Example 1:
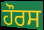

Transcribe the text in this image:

ਹੌਰਸ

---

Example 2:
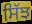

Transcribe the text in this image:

ਸਿੱਝ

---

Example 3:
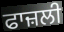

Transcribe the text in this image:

ਫਾਜ਼ਲੀ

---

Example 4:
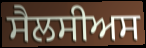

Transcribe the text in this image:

ਸੈਲਸੀਅਸ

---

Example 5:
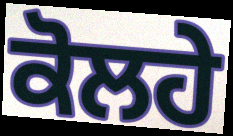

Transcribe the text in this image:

ਕੋਲਹੇ